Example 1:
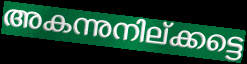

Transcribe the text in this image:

അകന്നുനില്ക്കട്ടെ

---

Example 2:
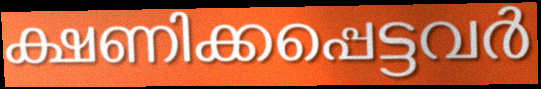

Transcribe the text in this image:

ക്ഷണിക്കപ്പെട്ടവർ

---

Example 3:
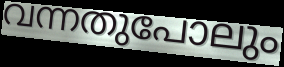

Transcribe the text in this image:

വന്നതുപോലും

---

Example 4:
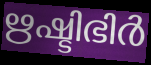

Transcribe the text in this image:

ഋഷ്ടിഭിർ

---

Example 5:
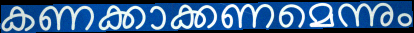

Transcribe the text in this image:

കണക്കാക്കണമെന്നും